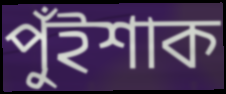
পুঁইশাক